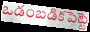
ఒడంబడికపెట్టె